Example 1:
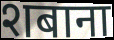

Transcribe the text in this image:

शबाना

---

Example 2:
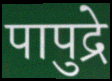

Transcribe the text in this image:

पापुद्रे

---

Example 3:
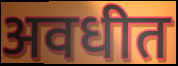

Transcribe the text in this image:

अवधीत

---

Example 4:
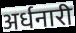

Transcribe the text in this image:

अर्धनारी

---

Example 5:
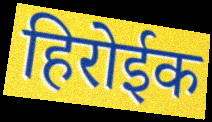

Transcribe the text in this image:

हिरोईक